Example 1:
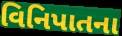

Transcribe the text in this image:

વિનિપાતના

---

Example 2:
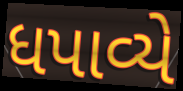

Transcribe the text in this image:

ધપાવ્યે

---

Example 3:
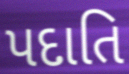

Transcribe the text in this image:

પદાતિ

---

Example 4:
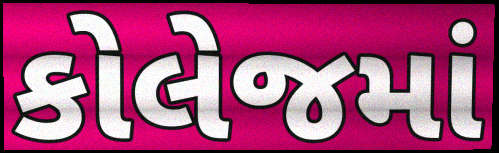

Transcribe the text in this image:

કોલેજમાં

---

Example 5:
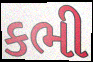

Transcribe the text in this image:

કભી